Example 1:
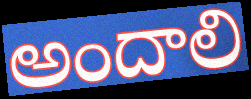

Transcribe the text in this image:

అందాలి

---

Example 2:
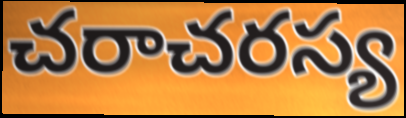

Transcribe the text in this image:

చరాచరస్య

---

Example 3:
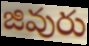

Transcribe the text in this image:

జివురు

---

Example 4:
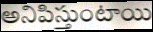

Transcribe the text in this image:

అనిపిస్తుంటాయి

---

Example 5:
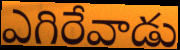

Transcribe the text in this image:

ఎగిరేవాడు